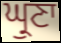
ਘ੍ਰੁਣਾ